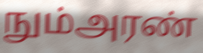
நும்அரண்